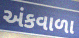
અંકવાળા